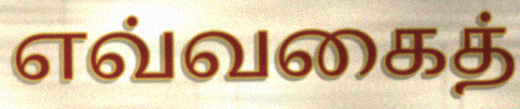
எவ்வகைத்